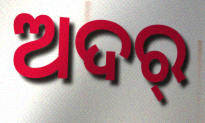
ଅଦର୍